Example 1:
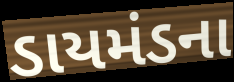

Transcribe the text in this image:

ડાયમંડના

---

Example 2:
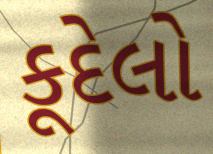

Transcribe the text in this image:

કૂદેલો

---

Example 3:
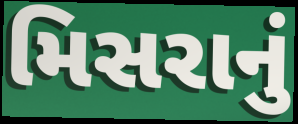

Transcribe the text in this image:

મિસરાનું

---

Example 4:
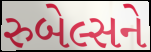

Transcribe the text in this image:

રુબેલ્સને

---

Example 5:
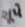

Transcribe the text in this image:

સૂપે